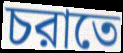
চরাতে